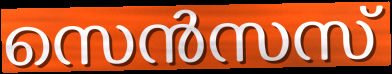
സെൻസസ്